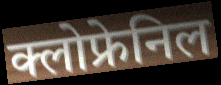
क्लोफ्रेनिल